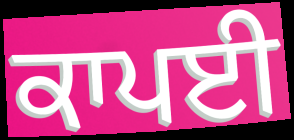
ਕਾਪਈ